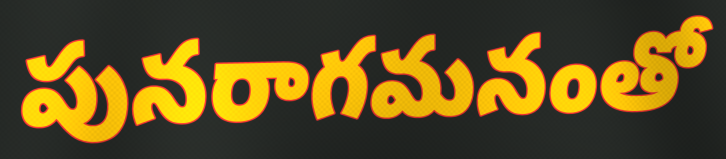
పునరాగమనంతో